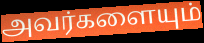
அவர்களையும்